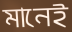
মানেই